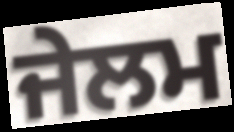
ਜੇਲਮ